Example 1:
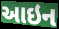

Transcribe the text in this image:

આઇન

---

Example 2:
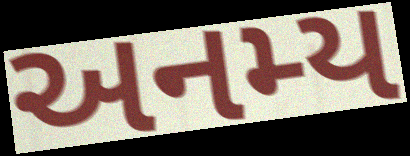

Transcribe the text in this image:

અનમ્ય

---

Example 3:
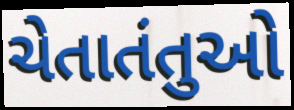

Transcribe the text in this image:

ચેતાતંતુઓ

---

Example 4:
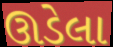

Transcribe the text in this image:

ઊડેલા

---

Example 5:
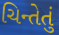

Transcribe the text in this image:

ચિન્તેતું